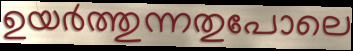
ഉയർത്തുന്നതുപോലെ